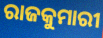
ରାଜକୁମାରୀ